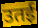
उतई